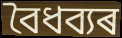
বৈধব্যৰ